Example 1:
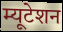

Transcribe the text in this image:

म्यूटेशन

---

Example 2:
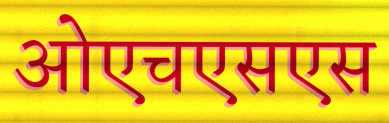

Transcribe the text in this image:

ओएचएसएस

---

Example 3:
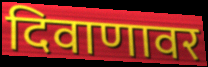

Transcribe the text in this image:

दिवाणावर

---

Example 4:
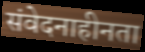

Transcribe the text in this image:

संवेदनाहीनता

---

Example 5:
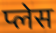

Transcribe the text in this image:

प्लेस